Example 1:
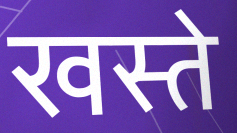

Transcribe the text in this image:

खस्ते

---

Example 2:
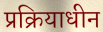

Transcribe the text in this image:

प्रक्रियाधीन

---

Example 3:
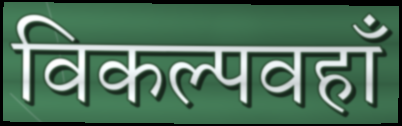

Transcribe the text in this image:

विकल्पवहाँ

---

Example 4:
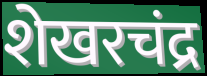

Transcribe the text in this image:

शेखरचंद्र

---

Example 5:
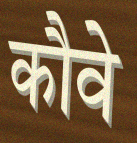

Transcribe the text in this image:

कौवे